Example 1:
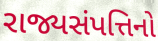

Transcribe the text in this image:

રાજ્યસંપત્તિનો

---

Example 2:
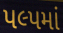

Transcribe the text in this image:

પલ્પમાં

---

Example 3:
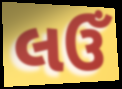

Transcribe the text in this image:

લઉઁ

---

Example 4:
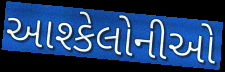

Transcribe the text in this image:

આશ્કેલોનીઓ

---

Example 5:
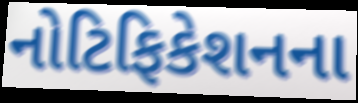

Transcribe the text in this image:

નોટિફિકેશનના